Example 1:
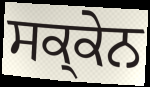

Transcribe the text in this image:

ਸਕ੍ਕੇਨ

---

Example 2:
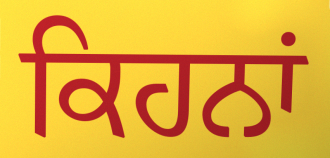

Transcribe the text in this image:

ਕਿਹਨਾਂ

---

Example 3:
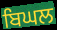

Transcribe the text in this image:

ਬਿਘਲ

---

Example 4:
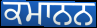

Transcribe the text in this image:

ਕਮਾਨਨ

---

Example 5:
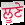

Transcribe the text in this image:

ਲੂਣੇ